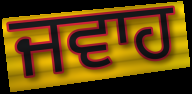
ਜਵਾਹ